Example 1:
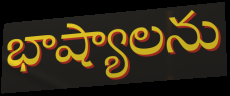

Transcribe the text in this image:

భాష్యాలను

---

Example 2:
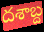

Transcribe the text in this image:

దశాబ్ద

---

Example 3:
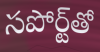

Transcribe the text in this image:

సపోర్ట్‌తో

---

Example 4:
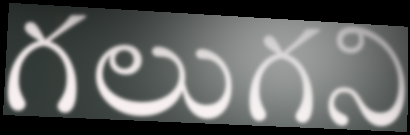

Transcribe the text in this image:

గలుగని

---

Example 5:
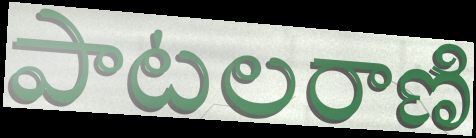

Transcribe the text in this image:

పాటలరాణి